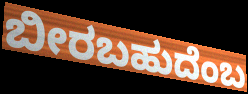
ಬೀರಬಹುದೆಂಬ